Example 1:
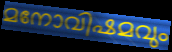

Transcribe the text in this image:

മനോവിഷമവും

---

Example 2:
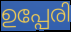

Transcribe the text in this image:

ഉപ്പേരി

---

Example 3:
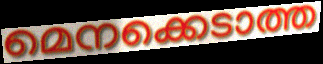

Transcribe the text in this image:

മെനക്കെടാത്ത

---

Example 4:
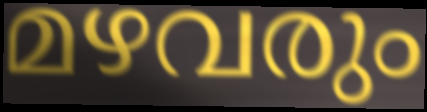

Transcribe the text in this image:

മഴവരും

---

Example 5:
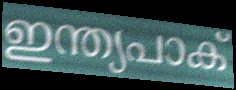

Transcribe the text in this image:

ഇന്ത്യപാക്